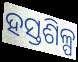
ହସ୍ତଶିଳ୍ପ